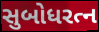
સુબોધરત્ન